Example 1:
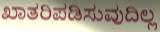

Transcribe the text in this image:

ಖಾತರಿಪಡಿಸುವುದಿಲ್ಲ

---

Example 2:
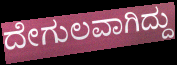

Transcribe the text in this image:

ದೇಗುಲವಾಗಿದ್ದು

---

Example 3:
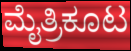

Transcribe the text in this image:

ಮೈತ್ರಿಕೂಟ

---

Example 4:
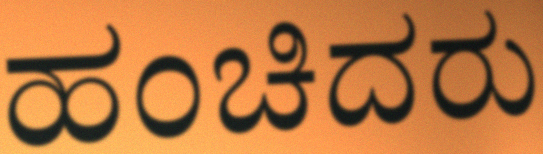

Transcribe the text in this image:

ಹಂಚಿದರು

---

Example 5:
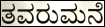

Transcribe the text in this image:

ತವರುಮನೆ